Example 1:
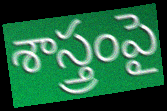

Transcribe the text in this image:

శాస్త్రంపై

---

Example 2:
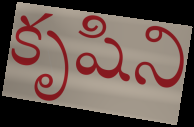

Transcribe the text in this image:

కృషిని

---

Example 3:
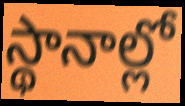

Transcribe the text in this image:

స్థానాల్లో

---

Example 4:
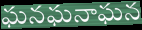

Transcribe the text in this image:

ఘనఘనాఘన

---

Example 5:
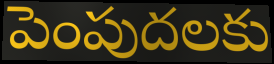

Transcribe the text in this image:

పెంపుదలకు